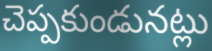
చెప్పకుండునట్లు